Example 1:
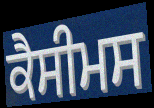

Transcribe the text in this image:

ਕੈਸੀਮਸ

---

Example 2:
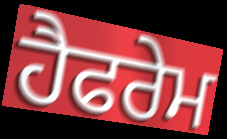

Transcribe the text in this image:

ਹੈਫਰੇਮ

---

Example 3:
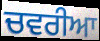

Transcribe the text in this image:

ਚਵਰੀਆ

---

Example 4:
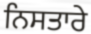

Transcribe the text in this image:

ਨਿਸਤਾਰੇ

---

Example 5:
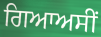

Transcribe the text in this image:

ਗਿਆਅਸੀਂ